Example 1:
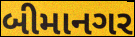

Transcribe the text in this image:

બીમાનગર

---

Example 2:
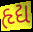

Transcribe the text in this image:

હૃદ્ય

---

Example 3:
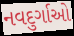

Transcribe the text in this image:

નવદુર્ગાઓ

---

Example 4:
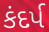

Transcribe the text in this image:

કંદર્પ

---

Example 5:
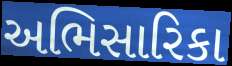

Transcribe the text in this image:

અભિસારિકા